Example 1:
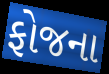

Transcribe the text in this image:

ફોજના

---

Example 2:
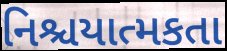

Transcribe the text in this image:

નિશ્ચયાત્મકતા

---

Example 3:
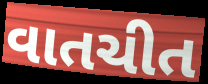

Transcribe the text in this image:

વાતચીત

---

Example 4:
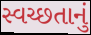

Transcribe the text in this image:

સ્વચ્છતાનું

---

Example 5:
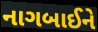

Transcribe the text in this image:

નાગબાઈને